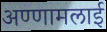
अण्णामलाई